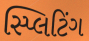
સ્પ્લિટિંગ